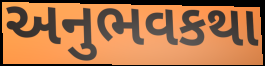
અનુભવકથા